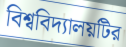
বিশ্ববিদ্যালয়টির